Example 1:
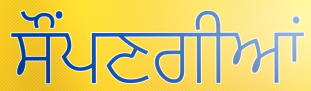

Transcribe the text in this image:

ਸੌਂਪਣਗੀਆਂ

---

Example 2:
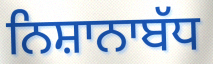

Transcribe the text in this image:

ਨਿਸ਼ਾਨਾਬੱਧ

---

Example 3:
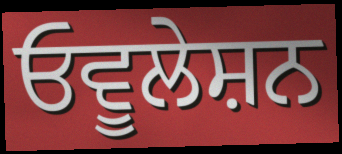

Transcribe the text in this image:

ਓਵੂਲੇਸ਼ਨ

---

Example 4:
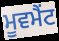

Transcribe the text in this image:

ਮੂਵਮੈਂਟ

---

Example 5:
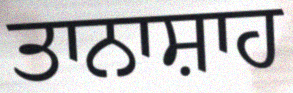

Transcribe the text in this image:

ਤਾਨਾਸ਼ਾਹ